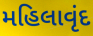
મહિલાવૃંદ